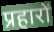
प्रहारों